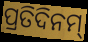
ପ୍ରତିଦିନମ୍